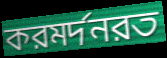
করমর্দনরত